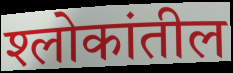
श्लोकांतील